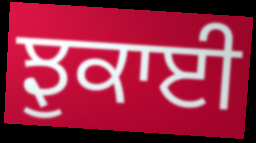
ਝੁਕਾਈ